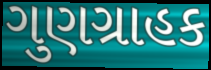
ગુણગ્રાહક